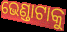
ଭେଣ୍ଡାଟାକୁ